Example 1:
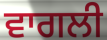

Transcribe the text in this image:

ਵਾਗਲੀ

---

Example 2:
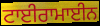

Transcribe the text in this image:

ਟਾਈਰਾਮਾਈਨ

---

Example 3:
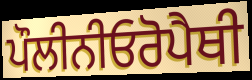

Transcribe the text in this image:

ਪੌਲੀਨੀਓਰੋਪੈਥੀ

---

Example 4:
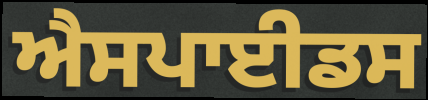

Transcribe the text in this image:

ਐਸਪਾਈਡਸ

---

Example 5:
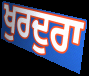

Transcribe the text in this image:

ਖੁਰਦੁਰਾ